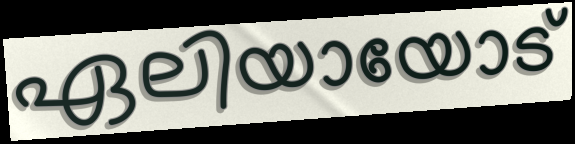
ഏലിയായോട്